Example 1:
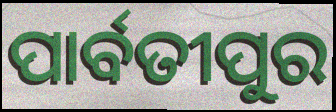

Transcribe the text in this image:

ପାର୍ବତୀପୁର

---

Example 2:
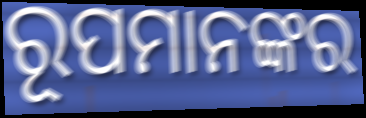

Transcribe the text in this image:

ରୂପମାନଙ୍କର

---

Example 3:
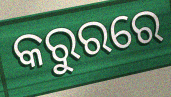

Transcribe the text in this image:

କରୁରରେ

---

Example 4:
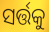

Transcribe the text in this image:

ସର୍ତ୍ତକୁ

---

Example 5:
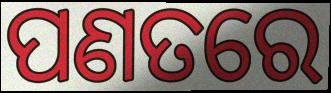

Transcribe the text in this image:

ପଣତରେ